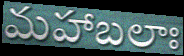
మహాబలాః